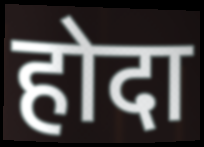
होदा